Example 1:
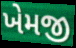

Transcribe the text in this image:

ખેમજી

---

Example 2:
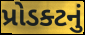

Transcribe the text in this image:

પ્રોડક્ટનું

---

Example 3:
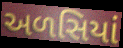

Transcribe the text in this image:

અળસિયાં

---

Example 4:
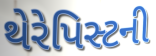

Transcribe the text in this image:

થેરેપિસ્ટની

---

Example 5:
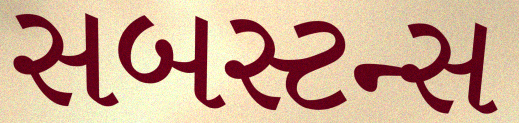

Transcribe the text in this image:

સબસ્ટન્સ